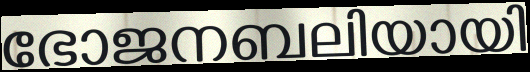
ഭോജനബലിയായി